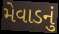
મેવાડનું